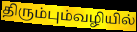
திரும்பும்வழியில்